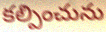
కల్పించును